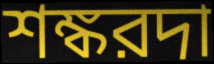
শঙ্করদা